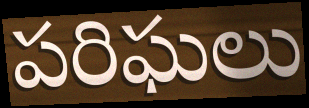
పరిఘలు